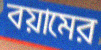
বয়ামের